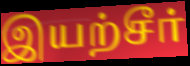
இயற்சீர்